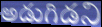
అడుగిడని